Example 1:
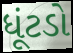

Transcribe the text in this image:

ધૂંટડો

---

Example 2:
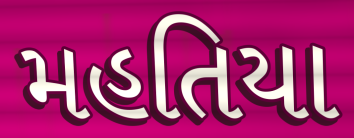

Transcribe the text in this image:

મહતિયા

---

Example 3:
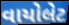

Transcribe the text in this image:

વાયોલેટ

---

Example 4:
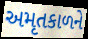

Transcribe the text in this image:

અમૃતકાળને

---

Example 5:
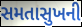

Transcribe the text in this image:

સમતાસુખની